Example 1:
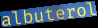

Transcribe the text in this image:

albuterol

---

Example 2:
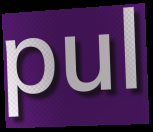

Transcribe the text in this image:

pul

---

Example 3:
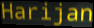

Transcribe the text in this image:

Harijan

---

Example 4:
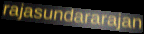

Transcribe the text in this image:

rajasundararajan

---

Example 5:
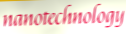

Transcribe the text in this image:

nanotechnology